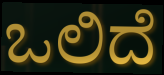
ಒಲಿದೆ